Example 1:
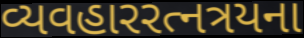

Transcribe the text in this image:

વ્યવહારરત્નત્રયના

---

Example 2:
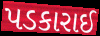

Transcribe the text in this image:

પડકારાઈ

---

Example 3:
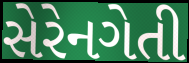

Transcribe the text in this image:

સેરેનગેતી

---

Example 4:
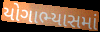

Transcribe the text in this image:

યોગાભ્યાસમાં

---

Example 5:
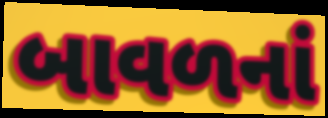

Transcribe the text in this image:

બાવળનાં